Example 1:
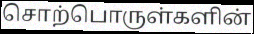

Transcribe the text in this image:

சொற்பொருள்களின்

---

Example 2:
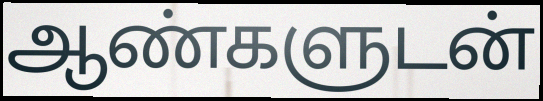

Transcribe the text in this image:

ஆண்களுடன்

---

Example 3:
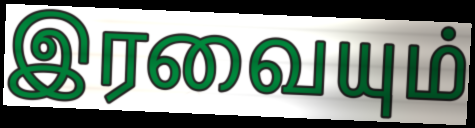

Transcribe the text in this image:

இரவையும்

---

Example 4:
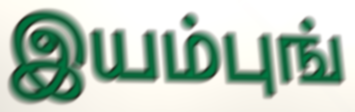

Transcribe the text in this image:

இயம்புங்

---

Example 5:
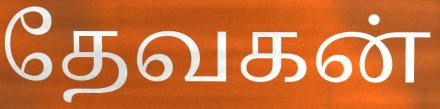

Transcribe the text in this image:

தேவகன்